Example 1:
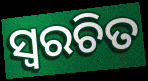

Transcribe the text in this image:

ସ୍ଵରଚିତ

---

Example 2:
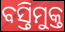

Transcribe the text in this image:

ବସ୍ତିମୁକ୍ତ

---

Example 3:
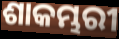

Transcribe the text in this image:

ଶାକମ୍ଭରୀ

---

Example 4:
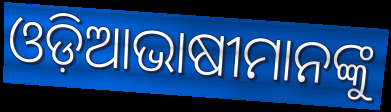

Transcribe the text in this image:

ଓଡ଼ିଆଭାଷୀମାନଙ୍କୁ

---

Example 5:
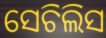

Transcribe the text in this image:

ସେଚିଲିସ